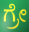
ಗ್ರೇ